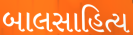
બાલસાહિત્ય